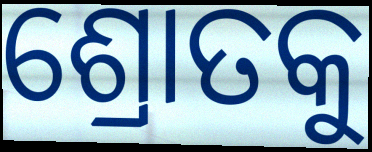
ଶ୍ରୋତକୁ